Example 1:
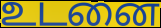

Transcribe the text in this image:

உடனை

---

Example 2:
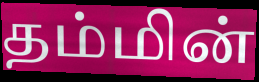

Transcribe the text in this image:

தம்மின்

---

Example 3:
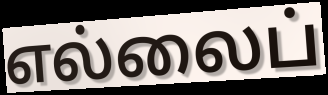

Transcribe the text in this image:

எல்லைப்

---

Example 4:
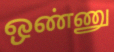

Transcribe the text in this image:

ஒண்ணு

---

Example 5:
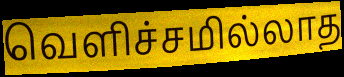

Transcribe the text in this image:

வெளிச்சமில்லாத